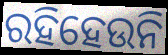
ରହିହେଉନି